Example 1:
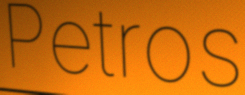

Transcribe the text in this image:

Petros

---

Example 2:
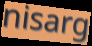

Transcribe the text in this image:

nisarg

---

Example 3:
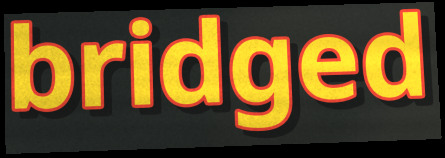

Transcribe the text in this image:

bridged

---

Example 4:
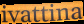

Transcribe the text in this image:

ivattina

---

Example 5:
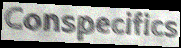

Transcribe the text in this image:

Conspecifics